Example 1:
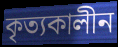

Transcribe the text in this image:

কৃত্যকালীন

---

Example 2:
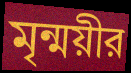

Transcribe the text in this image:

মৃন্ময়ীর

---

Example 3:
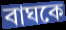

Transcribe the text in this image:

বাঘকে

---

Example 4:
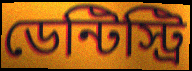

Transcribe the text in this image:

ডেন্টিস্ট্রি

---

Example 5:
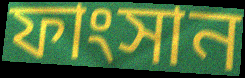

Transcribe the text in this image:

ফাংসান